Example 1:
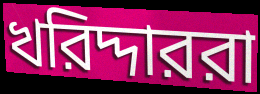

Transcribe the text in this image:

খরিদ্দাররা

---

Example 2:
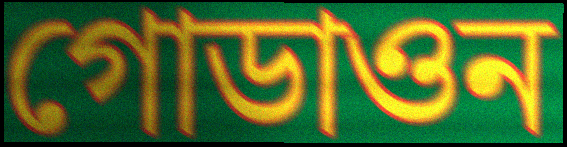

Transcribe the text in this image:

গোডাওন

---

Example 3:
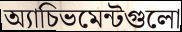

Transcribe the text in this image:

অ্যাচিভমেন্টগুলো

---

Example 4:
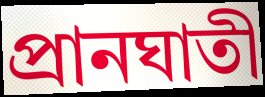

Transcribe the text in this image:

প্রানঘাতী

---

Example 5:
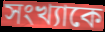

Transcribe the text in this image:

সংখ্যাকে